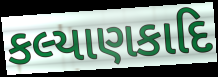
કલ્યાણકાદિ